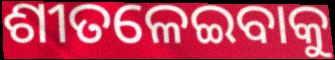
ଶୀତଳେଇବାକୁ